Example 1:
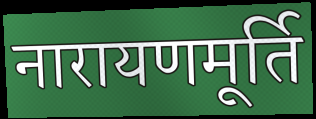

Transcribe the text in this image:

नारायणमूर्ति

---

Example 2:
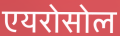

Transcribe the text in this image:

एयरोसोल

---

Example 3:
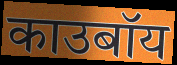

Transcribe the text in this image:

काउबॉय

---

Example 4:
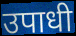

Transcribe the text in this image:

उपाधी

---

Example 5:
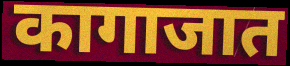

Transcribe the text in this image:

कागाजात